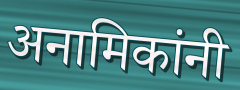
अनामिकांनी